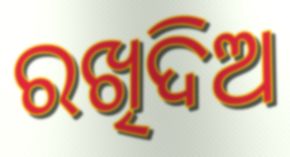
ରଖିଦିଅ